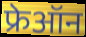
फ्रेऑन